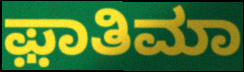
ಫ಼ಾತಿಮಾ